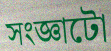
সংজ্ঞাটো